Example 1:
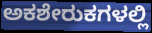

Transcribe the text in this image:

ಅಕಶೇರುಕಗಳಲ್ಲಿ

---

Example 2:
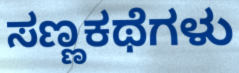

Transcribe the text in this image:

ಸಣ್ಣಕಥೆಗಳು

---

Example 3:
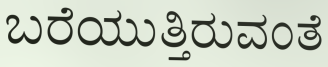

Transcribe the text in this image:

ಬರೆಯುತ್ತಿರುವಂತೆ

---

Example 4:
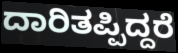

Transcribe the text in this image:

ದಾರಿತಪ್ಪಿದ್ದರೆ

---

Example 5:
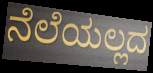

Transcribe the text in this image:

ನೆಲೆಯಲ್ಲದ